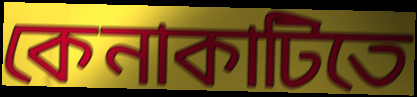
কেনাকাটিতে